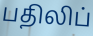
பதிலிப்